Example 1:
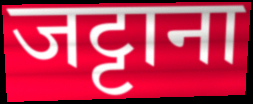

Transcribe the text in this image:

जट्टाना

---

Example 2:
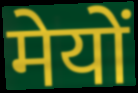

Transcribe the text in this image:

मेयों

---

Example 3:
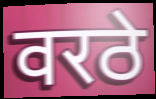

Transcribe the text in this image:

वरठे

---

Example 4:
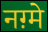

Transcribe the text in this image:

नग़्मे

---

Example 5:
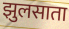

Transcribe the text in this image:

झुलसाता